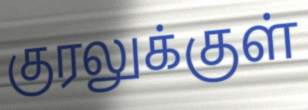
குரலுக்குள்